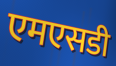
एमएसडी